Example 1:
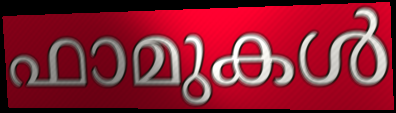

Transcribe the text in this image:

ഫാമുകൾ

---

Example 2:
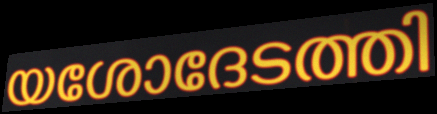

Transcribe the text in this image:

യശോദേടത്തി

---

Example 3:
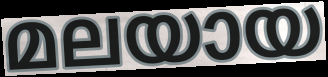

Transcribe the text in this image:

മലയായ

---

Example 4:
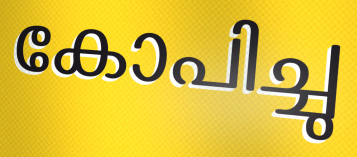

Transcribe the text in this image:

കോപിച്ചു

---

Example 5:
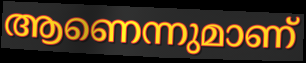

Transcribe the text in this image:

ആണെന്നുമാണ്